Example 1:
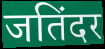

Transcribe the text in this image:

जतिंदर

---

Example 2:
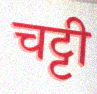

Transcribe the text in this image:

चट्टी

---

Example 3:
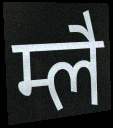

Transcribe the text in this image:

म्लै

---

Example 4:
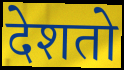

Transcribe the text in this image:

देशतो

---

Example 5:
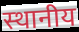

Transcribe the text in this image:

स्थानीय